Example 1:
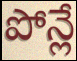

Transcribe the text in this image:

పోన్లే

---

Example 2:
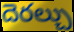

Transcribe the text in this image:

దెరల్చు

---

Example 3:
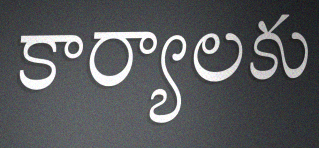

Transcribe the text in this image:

కార్యాలకు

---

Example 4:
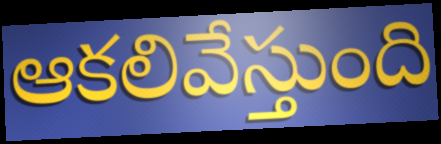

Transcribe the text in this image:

ఆకలివేస్తుంది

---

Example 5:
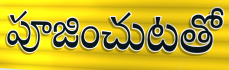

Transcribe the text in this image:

పూజించుటతో